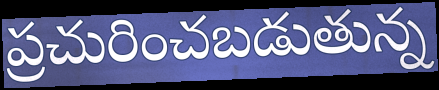
ప్రచురించబడుతున్న